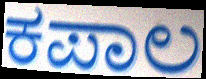
ಕಪಾಲ